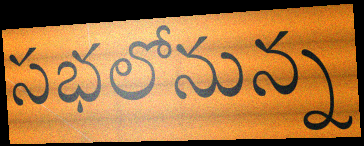
సభలోనున్న